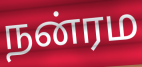
நன்ரம